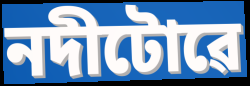
নদীটোৱে